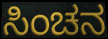
ಸಿಂಚನ